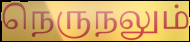
நெருநலும்